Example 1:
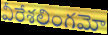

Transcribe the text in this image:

వీరేశలింగమో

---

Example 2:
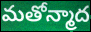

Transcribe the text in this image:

మతోన్మాద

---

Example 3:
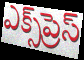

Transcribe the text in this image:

ఎక్స్‌ప్రెస్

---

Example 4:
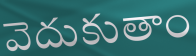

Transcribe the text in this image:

వెదుకుతాం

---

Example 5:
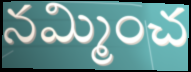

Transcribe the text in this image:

నమ్మించ